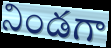
నిండగా